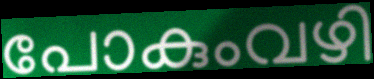
പോകുംവഴി